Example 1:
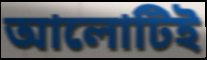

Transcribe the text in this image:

আলোটিই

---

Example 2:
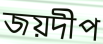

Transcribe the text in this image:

জয়দীপ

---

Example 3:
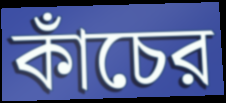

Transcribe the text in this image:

কাঁচের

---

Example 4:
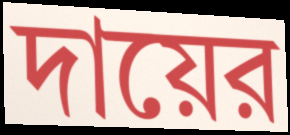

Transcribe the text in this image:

দায়ের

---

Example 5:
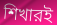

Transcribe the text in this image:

শিখারই